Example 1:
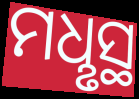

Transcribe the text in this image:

ମଧୢସ୍ଥ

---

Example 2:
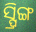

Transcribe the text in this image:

ସ୍ପ୍ରିଙ୍ଗ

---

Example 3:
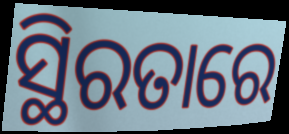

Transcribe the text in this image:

ସ୍ଥିରତାରେ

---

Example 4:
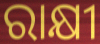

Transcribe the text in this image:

ରାକ୍ଷୀ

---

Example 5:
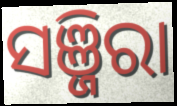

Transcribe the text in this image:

ସଞ୍ଜିରା